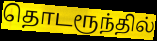
தொடரூந்தில்